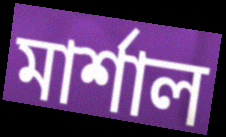
মাৰ্শাল